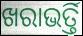
ଖରାଭର୍ତ୍ତି